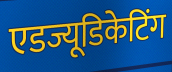
एडज्यूडिकेटिंग